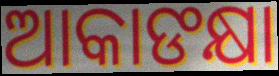
ଆକାଙକ୍ଷା